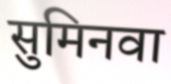
सुमिनवा